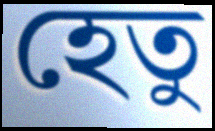
হেতু